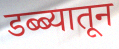
डब्ब्यातून